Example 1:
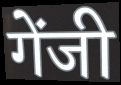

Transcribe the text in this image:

गेंजी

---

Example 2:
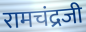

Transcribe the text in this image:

रामचंद्रजी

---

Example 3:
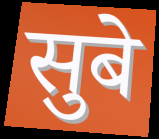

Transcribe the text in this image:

सुबे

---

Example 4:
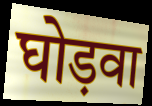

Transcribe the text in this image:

घोड़वा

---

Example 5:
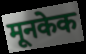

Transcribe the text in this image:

मूनकेक